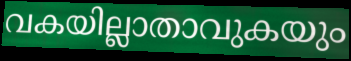
വകയില്ലാതാവുകയും